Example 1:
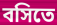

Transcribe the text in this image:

বসিতে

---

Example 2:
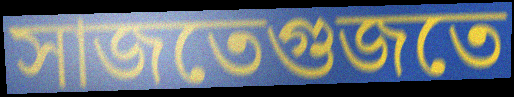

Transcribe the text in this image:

সাজতেগুজতে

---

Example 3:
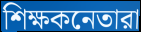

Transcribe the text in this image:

শিক্ষকনেতারা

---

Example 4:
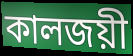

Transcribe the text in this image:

কালজয়ী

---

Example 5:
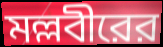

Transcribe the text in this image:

মল্লবীরের